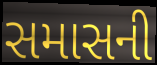
સમાસની